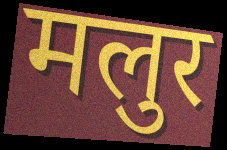
मलुर